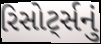
રિસોર્ટ્સનું